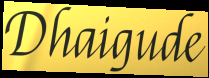
Dhaigude